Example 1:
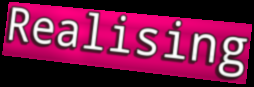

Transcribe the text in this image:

Realising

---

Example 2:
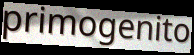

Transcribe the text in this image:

primogenito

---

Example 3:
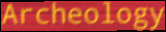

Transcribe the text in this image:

Archeology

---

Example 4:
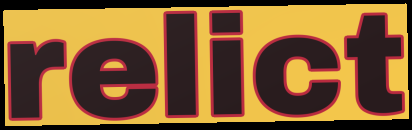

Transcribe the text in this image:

relict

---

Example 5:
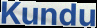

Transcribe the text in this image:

Kundu